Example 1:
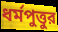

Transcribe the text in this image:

ধর্মপুত্তুর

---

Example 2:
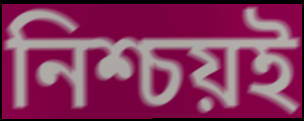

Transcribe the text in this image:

নিশ্চয়ই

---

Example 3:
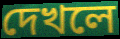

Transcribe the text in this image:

দেখলে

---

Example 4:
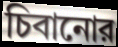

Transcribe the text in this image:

চিবানোর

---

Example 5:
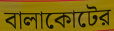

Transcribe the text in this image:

বালাকোটের